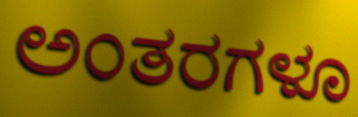
ಅಂತರಗಳೂ